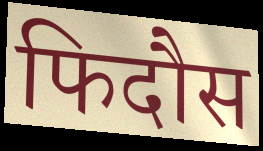
फिदौस